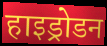
हाइड्रोडन